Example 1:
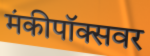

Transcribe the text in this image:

मंकीपॉक्सवर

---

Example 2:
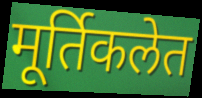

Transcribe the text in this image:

मूर्तिकलेत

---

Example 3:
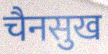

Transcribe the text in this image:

चैनसुख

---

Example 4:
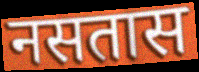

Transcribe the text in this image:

नसतास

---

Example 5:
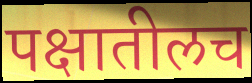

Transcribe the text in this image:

पक्षातीलच